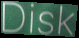
Disk